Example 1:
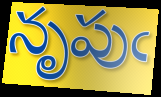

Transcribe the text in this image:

నృపుఁ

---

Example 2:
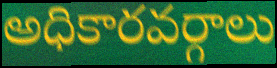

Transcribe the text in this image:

అధికారవర్గాలు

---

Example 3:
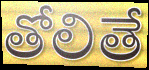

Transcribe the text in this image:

తోలితే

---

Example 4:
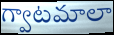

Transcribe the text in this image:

గ్వాటమాలా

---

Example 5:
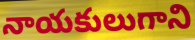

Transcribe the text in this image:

నాయకులుగాని